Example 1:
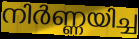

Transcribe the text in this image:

നിർണ്ണയിച്ച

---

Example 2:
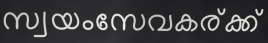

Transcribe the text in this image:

സ്വയംസേവകര്ക്ക്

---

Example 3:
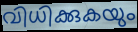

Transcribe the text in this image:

വിധിക്കുകയും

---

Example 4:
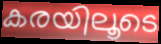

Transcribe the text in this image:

കരയിലൂടെ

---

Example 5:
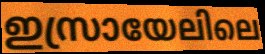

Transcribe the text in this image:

ഇസ്രായേലിലെ